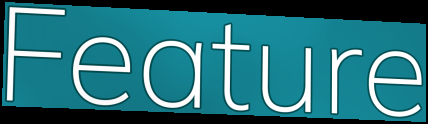
Feature